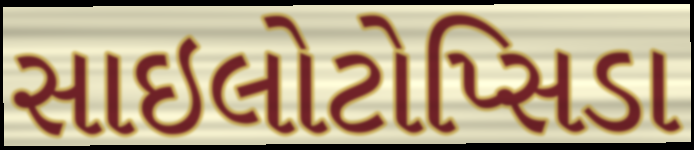
સાઇલોટોપ્સિડા